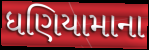
ધણિયામાના